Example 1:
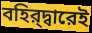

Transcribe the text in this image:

বহির্‌দ্বারেই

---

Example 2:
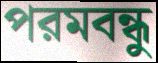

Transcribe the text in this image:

পরমবন্ধু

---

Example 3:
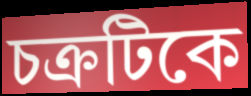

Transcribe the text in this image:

চক্রটিকে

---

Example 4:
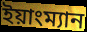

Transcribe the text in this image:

ইয়াংম্যান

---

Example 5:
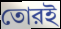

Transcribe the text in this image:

তোরই